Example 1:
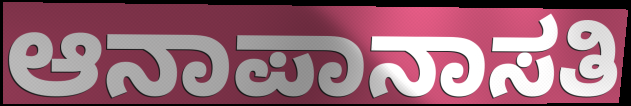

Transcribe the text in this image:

ಆನಾಪಾನಾಸತಿ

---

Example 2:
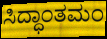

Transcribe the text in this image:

ಸಿದ್ಧಾಂತಮಂ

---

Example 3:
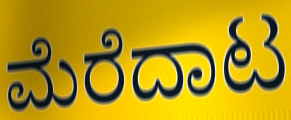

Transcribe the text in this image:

ಮೆರೆದಾಟ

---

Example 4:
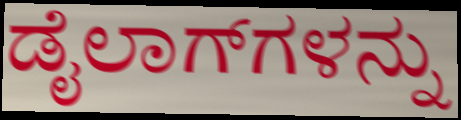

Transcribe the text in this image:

ಡೈಲಾಗ್‌ಗಳನ್ನು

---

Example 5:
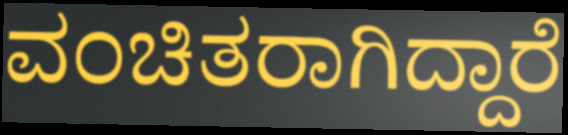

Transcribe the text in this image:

ವಂಚಿತರಾಗಿದ್ದಾರೆ